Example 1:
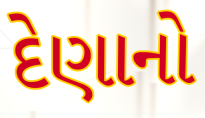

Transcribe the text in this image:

દેણાનો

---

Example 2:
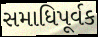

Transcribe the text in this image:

સમાધિપૂર્વક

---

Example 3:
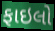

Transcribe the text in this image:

ફાઇલો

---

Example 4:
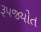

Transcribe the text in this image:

રૂપજ્યોત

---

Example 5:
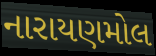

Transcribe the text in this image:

નારાયણમોલ